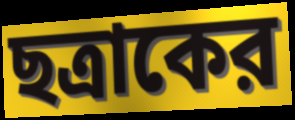
ছত্রাকের